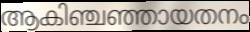
ആകിഞ്ചഞ്ഞായതനം